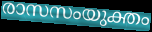
രാസസംയുക്തം